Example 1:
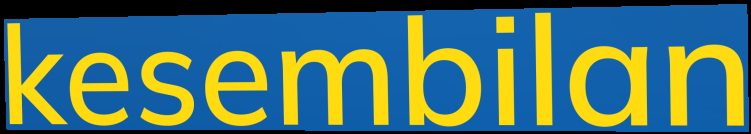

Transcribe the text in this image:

kesembilan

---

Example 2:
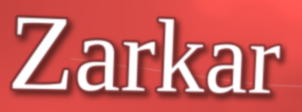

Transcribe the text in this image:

Zarkar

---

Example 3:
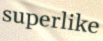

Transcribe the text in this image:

superlike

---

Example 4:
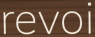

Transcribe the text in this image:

revoi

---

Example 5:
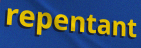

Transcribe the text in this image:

repentant